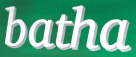
batha